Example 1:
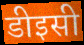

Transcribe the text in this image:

डीइसी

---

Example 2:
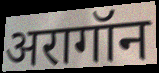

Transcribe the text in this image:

अरागॉन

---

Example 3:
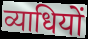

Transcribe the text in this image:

व्याधियों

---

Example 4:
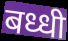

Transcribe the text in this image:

बध्धी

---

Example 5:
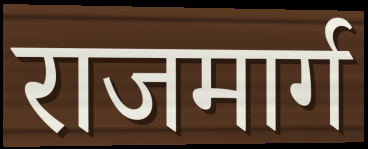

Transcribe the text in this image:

राजमार्ग